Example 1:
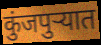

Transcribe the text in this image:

कुंजपुऱ्यात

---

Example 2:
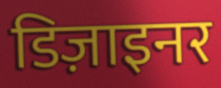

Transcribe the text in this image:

डिज़ाइनर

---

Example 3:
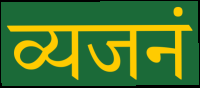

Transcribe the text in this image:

व्यजनं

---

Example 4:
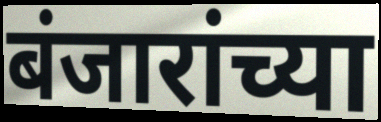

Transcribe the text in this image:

बंजारांच्या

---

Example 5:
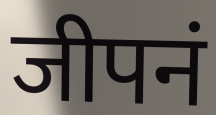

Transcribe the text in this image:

जीपनं